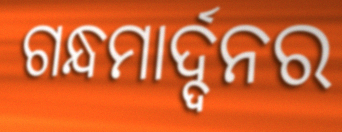
ଗନ୍ଧମାର୍ଦ୍ଦନର